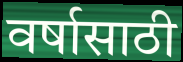
वर्षासाठी